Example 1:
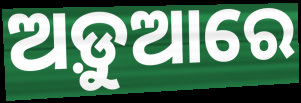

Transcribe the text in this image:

ଅଡ଼ୁଆରେ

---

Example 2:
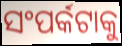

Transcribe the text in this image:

ସଂପର୍କଟାକୁ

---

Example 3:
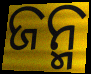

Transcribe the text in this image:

ଜନ୍ମ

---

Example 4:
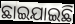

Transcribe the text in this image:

ଛାଇଯାଇଛି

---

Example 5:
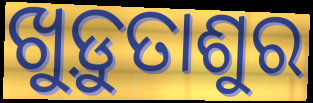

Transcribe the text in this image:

ଖୁଡ଼ୁତାଶୁର